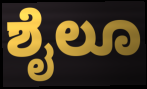
ಶೈಲೂ